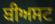
ਬੀਅਸਟ